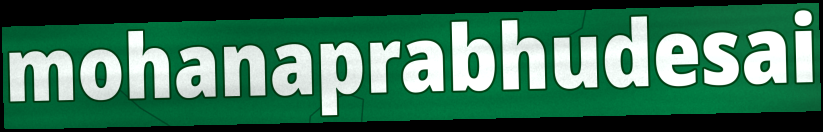
mohanaprabhudesai